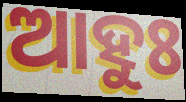
ଆହୁଃ